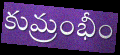
కుమ్రంభీం